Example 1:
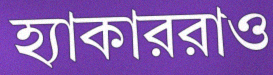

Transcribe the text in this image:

হ্যাকাররাও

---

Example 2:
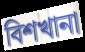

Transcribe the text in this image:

বিশখানা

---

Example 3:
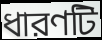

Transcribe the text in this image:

ধারণটি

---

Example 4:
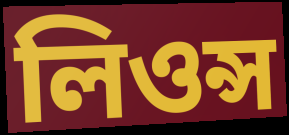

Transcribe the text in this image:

লিওন্স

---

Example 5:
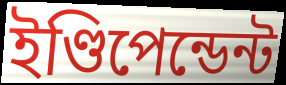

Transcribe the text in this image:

ইণ্ডিপেন্ডেন্ট